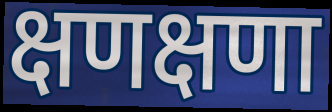
क्षणक्षणा